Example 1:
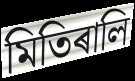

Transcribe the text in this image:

মিতিৰালি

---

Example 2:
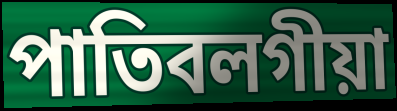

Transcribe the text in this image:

পাতিবলগীয়া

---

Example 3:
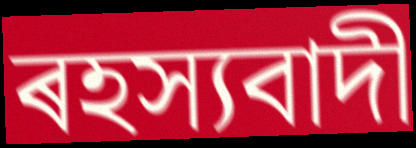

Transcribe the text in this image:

ৰহস্যবাদী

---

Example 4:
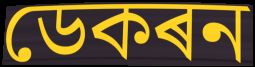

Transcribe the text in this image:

ডেকৰন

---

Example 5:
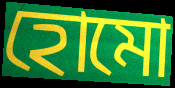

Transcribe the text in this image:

হোমো